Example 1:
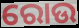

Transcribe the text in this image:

ରୋଉ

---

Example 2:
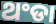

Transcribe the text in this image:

ଥଂଡା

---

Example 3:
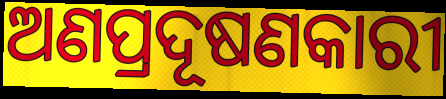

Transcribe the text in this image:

ଅଣପ୍ରଦୂଷଣକାରୀ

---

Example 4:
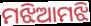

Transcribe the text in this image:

ମଝିଆମଝି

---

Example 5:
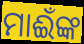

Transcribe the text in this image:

ମାଈଁଙ୍କ